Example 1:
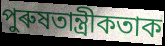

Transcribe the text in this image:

পুৰুষতান্ত্ৰীকতাক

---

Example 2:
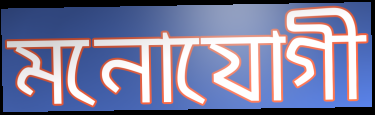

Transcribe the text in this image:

মনোযোগী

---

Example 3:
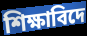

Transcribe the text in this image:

শিক্ষাবিদে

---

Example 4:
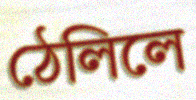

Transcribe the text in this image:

ঠেলিলে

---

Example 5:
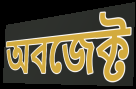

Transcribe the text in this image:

অবজেক্ট